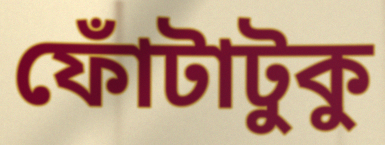
ফোঁটাটুকু